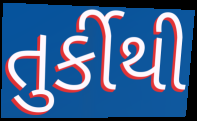
તુર્કીથી